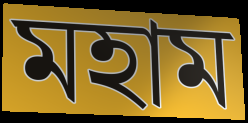
মহাম